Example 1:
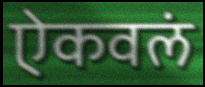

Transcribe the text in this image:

ऐकवलं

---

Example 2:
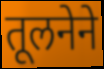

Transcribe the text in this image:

तूलनेने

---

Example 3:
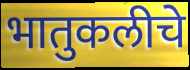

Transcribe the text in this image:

भातुकलीचे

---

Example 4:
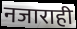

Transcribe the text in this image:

नजाराही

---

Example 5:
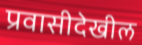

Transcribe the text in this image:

प्रवासीदेखील